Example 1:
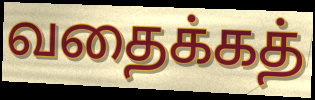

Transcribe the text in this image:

வதைக்கத்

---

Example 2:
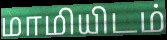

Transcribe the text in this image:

மாமியிடம்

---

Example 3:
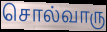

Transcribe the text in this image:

சொல்வாரு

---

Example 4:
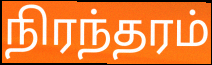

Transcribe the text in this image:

நிரந்தரம்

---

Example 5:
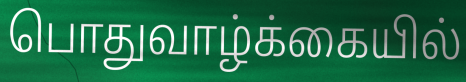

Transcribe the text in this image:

பொதுவாழ்க்கையில்